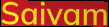
Saivam